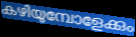
കഴിയുമ്പോളേക്കും